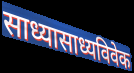
साध्यासाध्यविवेक